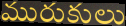
మురుకులు